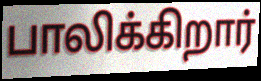
பாலிக்கிறார்